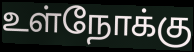
உள்நோக்கு